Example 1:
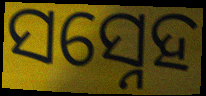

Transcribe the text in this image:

ସସ୍ନେହ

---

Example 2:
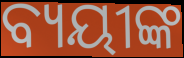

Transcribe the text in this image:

ବ୍ୟୟୀଙ୍କ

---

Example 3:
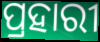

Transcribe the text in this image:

ପ୍ରହାରୀ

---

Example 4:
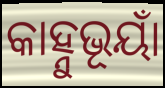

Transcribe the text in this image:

କାହ୍ନୁଭୂୟାଁ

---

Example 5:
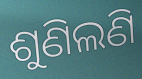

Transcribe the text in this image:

ଶୁଣିଲଣି